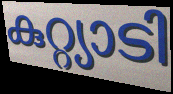
കുറ്റ്യാടി